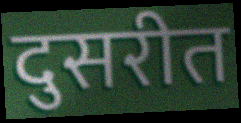
दुसरीत